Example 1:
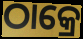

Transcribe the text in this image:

ଠାକ୍ରେ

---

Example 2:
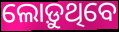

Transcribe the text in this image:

ଲୋଡ଼ୁଥିବେ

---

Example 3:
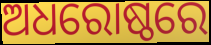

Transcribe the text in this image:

ଅଧରୋଷ୍ଠରେ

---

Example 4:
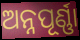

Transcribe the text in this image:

ଅନ୍ନପୂର୍ଣ୍ଣା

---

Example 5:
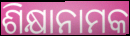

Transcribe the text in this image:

ଶିକ୍ଷାନାମକ